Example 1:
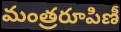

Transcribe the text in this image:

మంత్రరూపిణీ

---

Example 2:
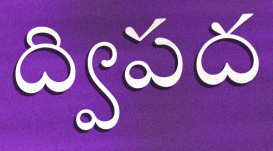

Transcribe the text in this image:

ద్విపద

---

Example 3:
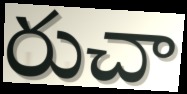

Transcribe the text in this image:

రుచా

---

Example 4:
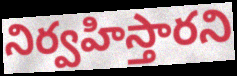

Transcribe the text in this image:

నిర్వహిస్తారని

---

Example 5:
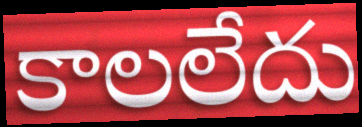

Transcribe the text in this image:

కాలలేదు